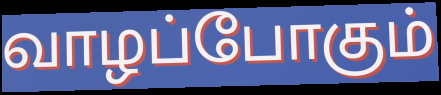
வாழப்போகும்